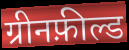
ग्रीनफ़ील्ड